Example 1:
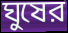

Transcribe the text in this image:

ঘুষের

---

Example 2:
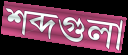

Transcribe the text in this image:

শব্দগুলা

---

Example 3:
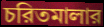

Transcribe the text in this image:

চরিতমালার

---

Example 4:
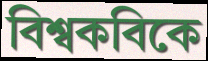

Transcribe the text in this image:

বিশ্বকবিকে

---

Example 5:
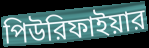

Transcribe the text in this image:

পিউরিফাইয়ার